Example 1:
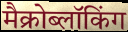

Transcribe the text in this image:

मैक्रोब्लॉकिंग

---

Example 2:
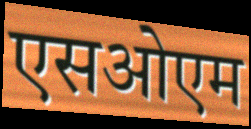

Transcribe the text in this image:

एसओएम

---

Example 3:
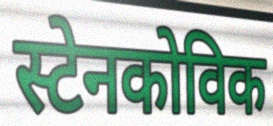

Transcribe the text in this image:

स्टेनकोविक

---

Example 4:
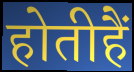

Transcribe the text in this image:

होतीहैं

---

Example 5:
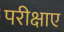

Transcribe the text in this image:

परीक्षाए